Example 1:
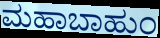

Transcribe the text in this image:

ಮಹಾಬಾಹುಂ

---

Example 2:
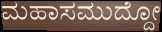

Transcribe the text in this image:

ಮಹಾಸಮುದ್ದೋ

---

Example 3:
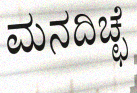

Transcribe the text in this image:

ಮನದಿಚ್ಛೆ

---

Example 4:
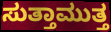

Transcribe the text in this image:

ಸುತ್ತಾಮುತ್ತ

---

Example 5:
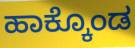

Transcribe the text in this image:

ಹಾಕ್ಕೊಂಡ